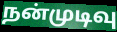
நன்முடிவு